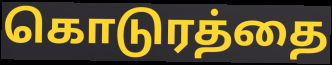
கொடுரத்தை